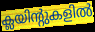
ക്ലയിന്റുകളിൽ